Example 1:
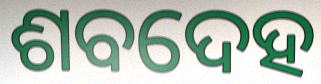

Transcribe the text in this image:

ଶବଦେହ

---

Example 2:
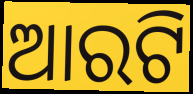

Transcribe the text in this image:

ଆରଟି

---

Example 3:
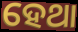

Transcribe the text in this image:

ହେଥା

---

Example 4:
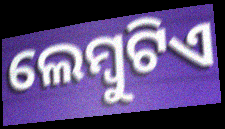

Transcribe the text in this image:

ଲେମ୍ବୁଟିଏ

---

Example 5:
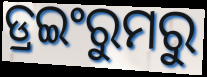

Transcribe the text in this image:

ଡ୍ରଇଂରୁମରୁ